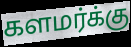
களமர்க்கு